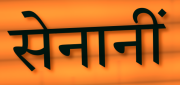
सेनानीं